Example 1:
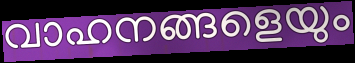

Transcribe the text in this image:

വാഹനങ്ങളെയും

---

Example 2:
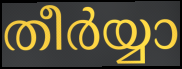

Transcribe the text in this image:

തീർയ്യാ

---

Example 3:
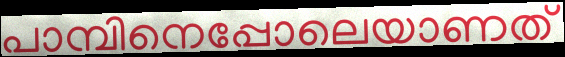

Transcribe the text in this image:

പാമ്പിനെപ്പോലെയാണത്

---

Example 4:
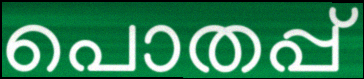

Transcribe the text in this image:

പൊതപ്പ്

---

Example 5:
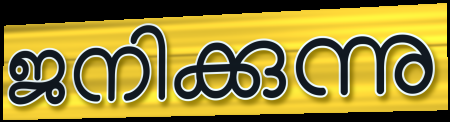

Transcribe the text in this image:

ജനിക്കുന്നു